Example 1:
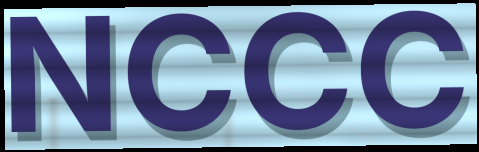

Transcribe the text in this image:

NCCC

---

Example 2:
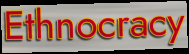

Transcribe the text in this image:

Ethnocracy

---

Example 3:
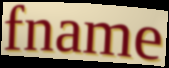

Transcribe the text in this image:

fname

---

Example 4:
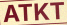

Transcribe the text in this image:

ATKT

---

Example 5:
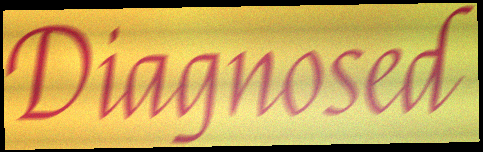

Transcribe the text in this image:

Diagnosed